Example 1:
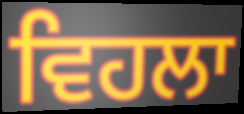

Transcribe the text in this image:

ਵਿਹਲਾ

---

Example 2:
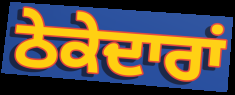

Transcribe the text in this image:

ਠੇਕੇਦਾਰਾਂ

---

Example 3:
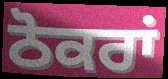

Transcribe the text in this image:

ਠੋਕਰਾਂ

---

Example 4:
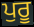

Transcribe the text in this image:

ਪੁਰੂ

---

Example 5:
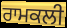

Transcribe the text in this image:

ਰਾਮਕਲੀ